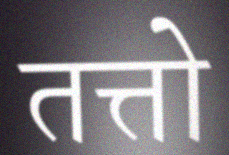
तत्तो